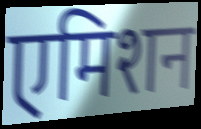
एमिशन